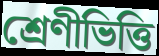
শ্রেণীভিত্তি